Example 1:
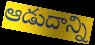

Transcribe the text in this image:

ఆడుదాన్ని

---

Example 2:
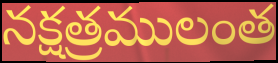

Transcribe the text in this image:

నక్షత్రములంత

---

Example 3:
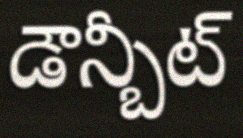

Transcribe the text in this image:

డౌన్బీట్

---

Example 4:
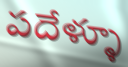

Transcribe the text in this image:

పదేళ్ళూ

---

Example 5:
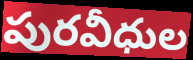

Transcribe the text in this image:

పురవీధుల